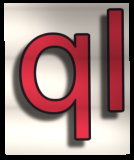
ql